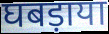
घबड़ाया